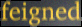
feigned